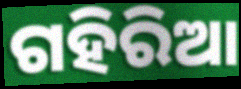
ଗହିରିଆ